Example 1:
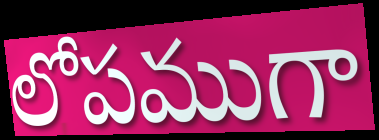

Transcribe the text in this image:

లోపముగా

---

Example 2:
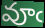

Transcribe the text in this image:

వూఁ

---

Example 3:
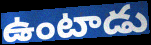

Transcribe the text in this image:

ఉంటాడు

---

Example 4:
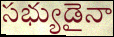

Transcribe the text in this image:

సభ్యుడైనా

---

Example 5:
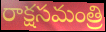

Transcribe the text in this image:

రాక్షసమంత్రి